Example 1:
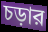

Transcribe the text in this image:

চড়ার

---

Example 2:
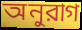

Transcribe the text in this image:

অনুরাগ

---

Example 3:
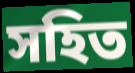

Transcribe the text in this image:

সহিত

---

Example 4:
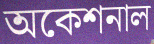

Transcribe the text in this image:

অকেশনাল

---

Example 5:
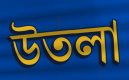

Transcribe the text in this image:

উতলা